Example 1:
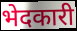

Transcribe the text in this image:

भेदकारी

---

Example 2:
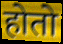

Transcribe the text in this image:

होतो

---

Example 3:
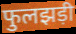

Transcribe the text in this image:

फुलझड़ी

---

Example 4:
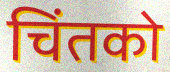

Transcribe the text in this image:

चिंतको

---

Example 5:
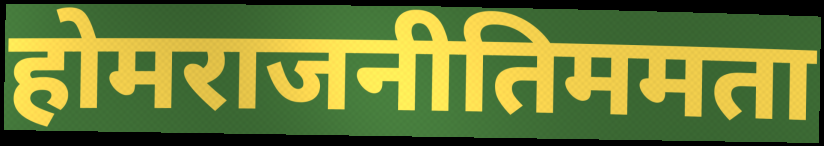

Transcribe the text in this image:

होमराजनीतिममता